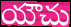
యౌచు